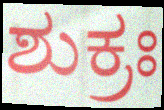
ಶುಕ್ರಃ